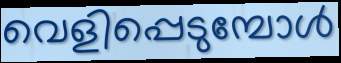
വെളിപ്പെടുമ്പോൾ